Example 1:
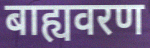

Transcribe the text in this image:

बाह्यवरण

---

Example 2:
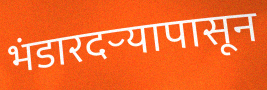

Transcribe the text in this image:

भंडारदऱ्यापासून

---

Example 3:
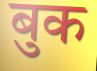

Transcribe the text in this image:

बुक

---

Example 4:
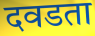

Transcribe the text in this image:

दवडता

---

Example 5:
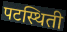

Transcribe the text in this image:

पटस्थिती